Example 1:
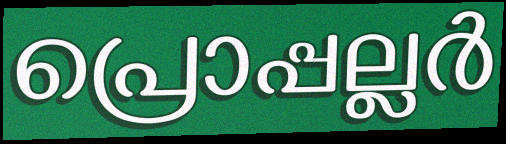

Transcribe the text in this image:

പ്രൊപ്പല്ലർ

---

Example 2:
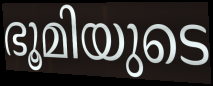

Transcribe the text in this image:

ഭൂമിയുടെ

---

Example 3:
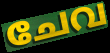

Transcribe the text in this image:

ചേവ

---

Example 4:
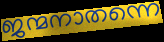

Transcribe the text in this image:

ജന്മനാതന്നെ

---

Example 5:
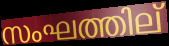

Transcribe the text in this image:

സംഘത്തില്